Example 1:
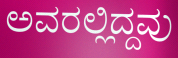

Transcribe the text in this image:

ಅವರಲ್ಲಿದ್ದವು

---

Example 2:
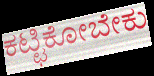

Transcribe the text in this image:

ಕಟ್ಟಿಕೋಬೇಕು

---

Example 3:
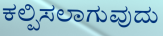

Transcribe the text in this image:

ಕಲ್ಪಿಸಲಾಗುವುದು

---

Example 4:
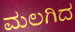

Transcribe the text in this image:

ಮಲಗಿದ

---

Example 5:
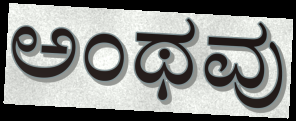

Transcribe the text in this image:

ಅಂಥವು